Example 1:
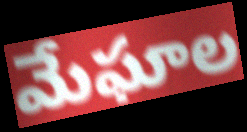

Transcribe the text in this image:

మేఘాల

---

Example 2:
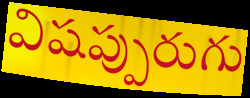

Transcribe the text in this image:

విషప్పురుగు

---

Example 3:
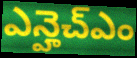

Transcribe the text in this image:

ఎన్హెచ్ఎం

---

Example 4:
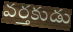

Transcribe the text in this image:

వర్తకుడు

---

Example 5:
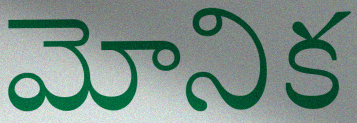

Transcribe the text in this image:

మోనిక